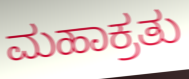
ಮಹಾಕ್ರತು